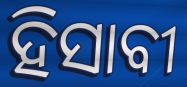
ହିସାବୀ